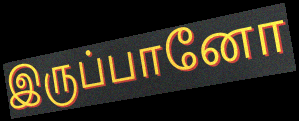
இருப்பானோ